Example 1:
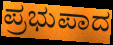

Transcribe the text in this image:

ಪ್ರಭುಪಾದ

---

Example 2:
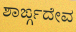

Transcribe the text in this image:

ಶಾರ್ಙ್ಗದೇವ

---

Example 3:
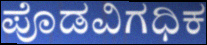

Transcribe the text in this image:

ಪೊಡವಿಗಧಿಕ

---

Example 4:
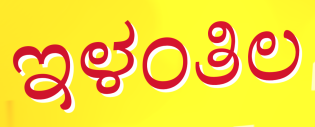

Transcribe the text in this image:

ಇಳಂತಿಲ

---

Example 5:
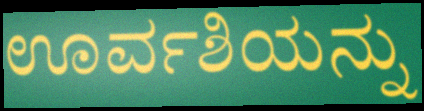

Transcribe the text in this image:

ಊರ್ವಶಿಯನ್ನು